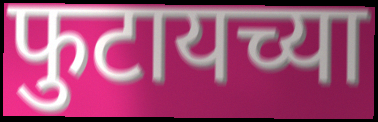
फुटायच्या